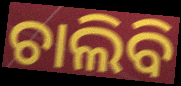
ଚାଲିବି